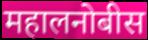
महालनोबीस